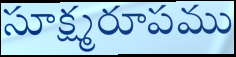
సూక్ష్మరూపము